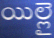
యిల్లై